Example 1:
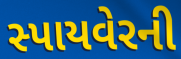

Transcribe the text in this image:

સ્પાયવેરની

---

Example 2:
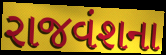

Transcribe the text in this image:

રાજવંશના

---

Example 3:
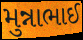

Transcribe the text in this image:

મુન્નાભાઈ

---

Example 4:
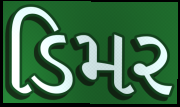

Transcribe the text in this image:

ડિમર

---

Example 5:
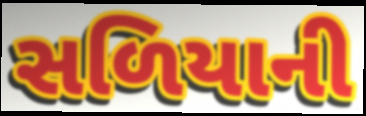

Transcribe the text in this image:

સળિયાની